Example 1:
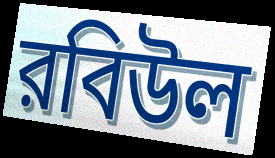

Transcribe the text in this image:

রবিউল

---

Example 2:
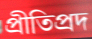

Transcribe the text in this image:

প্রীতিপ্রদ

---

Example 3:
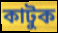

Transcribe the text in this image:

কাটুক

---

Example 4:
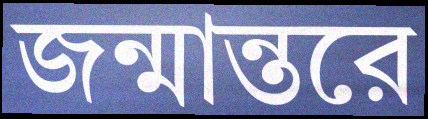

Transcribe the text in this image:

জন্মান্তরে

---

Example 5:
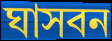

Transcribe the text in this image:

ঘাসবন